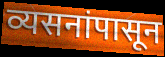
व्यसनांपासून